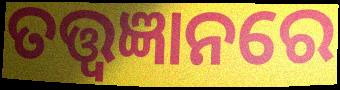
ତତ୍ତ୍ୱଜ୍ଞାନରେ